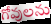
గోవులను